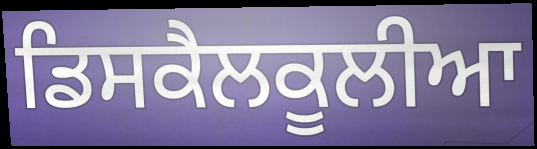
ਡਿਸਕੈਲਕੂਲੀਆ